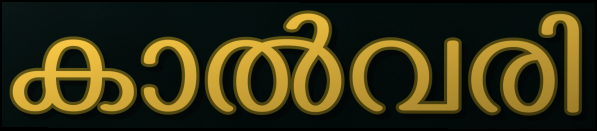
കാൽവരി